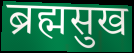
ब्रह्मसुख